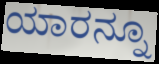
ಯಾರನ್ನೂ